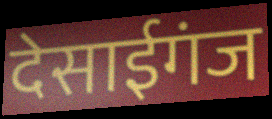
देसाईगंज